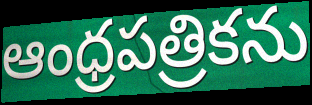
ఆంధ్రపత్రికను